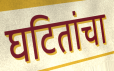
घटितांचा